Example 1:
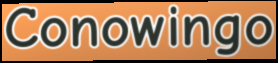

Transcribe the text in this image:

Conowingo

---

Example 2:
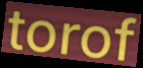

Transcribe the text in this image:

torof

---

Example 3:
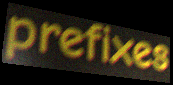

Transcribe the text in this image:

prefixes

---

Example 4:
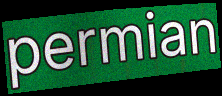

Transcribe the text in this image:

permian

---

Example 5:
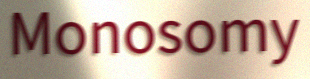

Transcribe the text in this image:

Monosomy